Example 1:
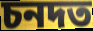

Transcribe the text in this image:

চনদত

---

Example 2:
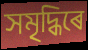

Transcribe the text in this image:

সমৃদ্ধিৰে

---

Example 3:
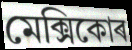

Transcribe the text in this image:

মেক্সিকোৰ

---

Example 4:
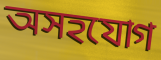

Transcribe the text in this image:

অসহযোগ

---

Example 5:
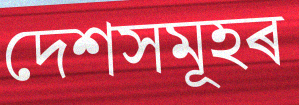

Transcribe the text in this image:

দেশসমূহৰ